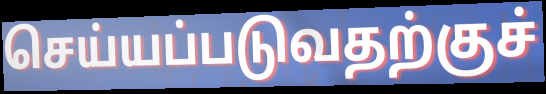
செய்யப்படுவதற்குச்